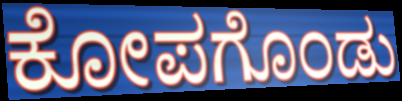
ಕೋಪಗೊಂಡು